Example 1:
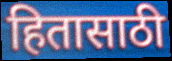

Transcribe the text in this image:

हितासाठी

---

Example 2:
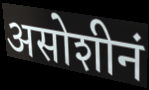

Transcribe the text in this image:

असोशीनं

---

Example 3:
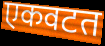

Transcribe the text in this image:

एकवटत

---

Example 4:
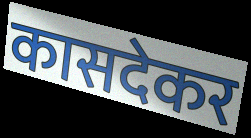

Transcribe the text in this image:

कासदेकर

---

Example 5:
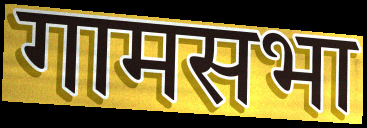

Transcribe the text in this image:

गामसभा